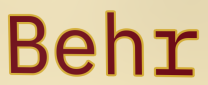
Behr